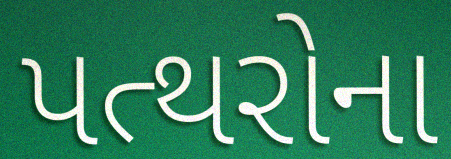
પત્થરોના